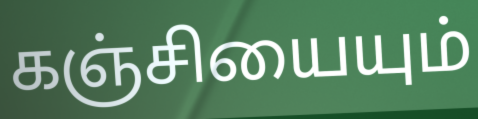
கஞ்சியையும்